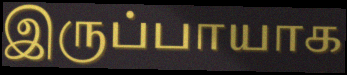
இருப்பாயாக